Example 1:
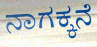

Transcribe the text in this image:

ನಾಗಕ್ಕನೆ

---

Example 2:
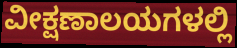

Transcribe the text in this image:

ವೀಕ್ಷಣಾಲಯಗಳಲ್ಲಿ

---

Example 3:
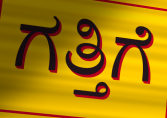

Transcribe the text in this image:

ಗತ್ತಿಗೆ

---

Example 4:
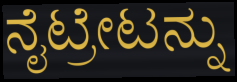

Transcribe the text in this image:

ನೈಟ್ರೇಟನ್ನು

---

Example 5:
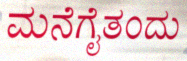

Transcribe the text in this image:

ಮನೆಗೈತಂದು